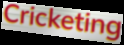
Cricketing